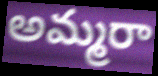
అమ్మరా